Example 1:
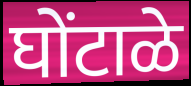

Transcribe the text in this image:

घोंटाळे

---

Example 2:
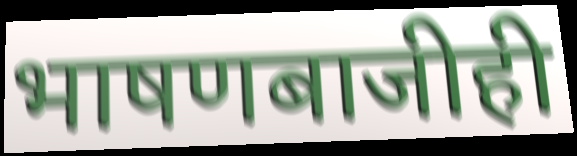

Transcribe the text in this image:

भाषणबाजीही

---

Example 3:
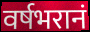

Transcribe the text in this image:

वर्षभरानं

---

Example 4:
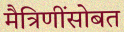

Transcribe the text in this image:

मैत्रिणींसोबत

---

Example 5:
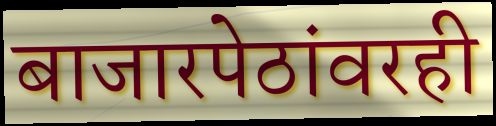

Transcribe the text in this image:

बाजारपेठांवरही